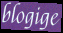
blogige